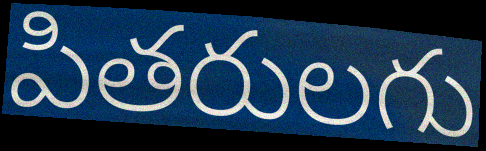
పితరులగు